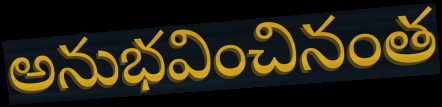
అనుభవించినంత